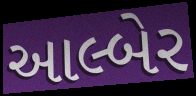
આલ્બેર